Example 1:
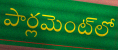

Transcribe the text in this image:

పార్లమెంట్‌లో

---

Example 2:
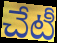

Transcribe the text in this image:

చేటీ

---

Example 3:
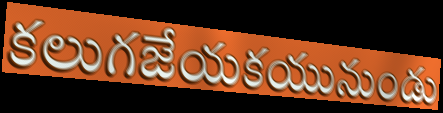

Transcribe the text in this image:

కలుగజేయకయునుండు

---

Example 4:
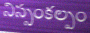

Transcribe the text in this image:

నిస్సంకల్పం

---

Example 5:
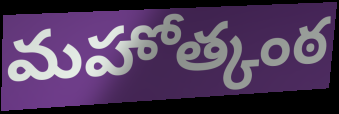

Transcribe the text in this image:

మహోత్కంఠ